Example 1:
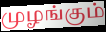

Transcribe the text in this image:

முழங்கும்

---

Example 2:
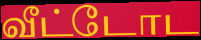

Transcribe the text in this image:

வீட்டோட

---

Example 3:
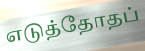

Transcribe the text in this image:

எடுத்தோதப்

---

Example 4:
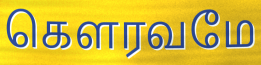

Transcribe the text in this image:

கௌரவமே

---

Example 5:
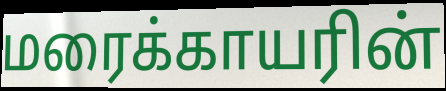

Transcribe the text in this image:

மரைக்காயரின்